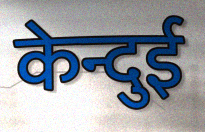
केन्दुई